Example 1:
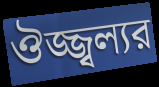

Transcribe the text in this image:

ঔজ্জ্বল্যর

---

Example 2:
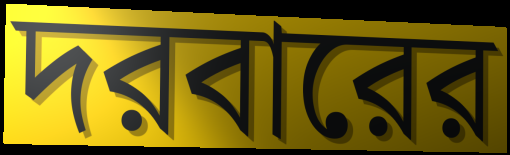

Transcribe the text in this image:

দরবারের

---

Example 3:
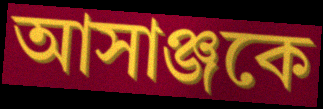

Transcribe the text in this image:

আসাঞ্জকে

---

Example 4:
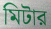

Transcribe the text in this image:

মিটার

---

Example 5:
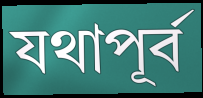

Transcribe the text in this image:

যথাপূর্ব